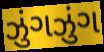
ઝુંગઝુંગ